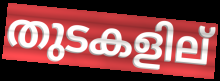
തുടകളില്